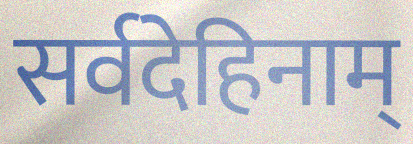
सर्वदेहिनाम्